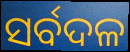
ସର୍ବଦଳ